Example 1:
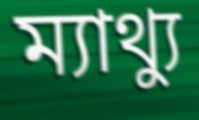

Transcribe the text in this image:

ম্যাথ্যু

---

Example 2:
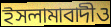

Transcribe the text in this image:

ইসলামাবাদীও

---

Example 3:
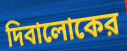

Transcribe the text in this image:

দিবালোকের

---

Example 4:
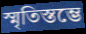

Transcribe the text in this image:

স্মৃতিস্তম্ভে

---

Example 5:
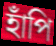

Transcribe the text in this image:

হাঁপি